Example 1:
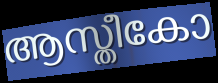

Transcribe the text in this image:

ആസ്തീകോ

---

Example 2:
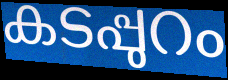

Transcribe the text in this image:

കടപ്പുറം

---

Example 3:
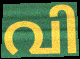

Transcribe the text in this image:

വി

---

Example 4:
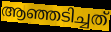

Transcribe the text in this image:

ആഞ്ഞടിച്ചത്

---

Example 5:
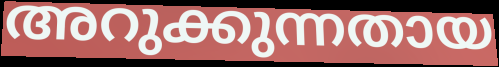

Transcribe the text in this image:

അറുക്കുന്നതായ